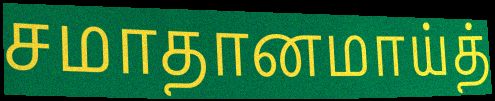
சமாதானமாய்த்